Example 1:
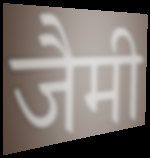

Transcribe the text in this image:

जैमी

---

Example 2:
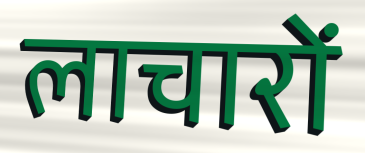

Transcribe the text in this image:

लाचारों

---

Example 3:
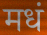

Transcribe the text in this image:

मधं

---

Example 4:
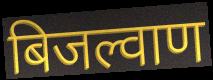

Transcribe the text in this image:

बिजल्वाण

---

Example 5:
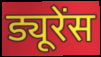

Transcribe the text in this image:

ड्यूरेंस